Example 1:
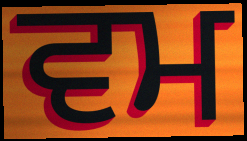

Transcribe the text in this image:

ਵਮ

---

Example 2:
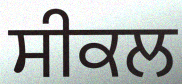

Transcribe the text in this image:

ਸੀਕਲ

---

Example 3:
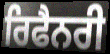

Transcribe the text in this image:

ਰਿਫੈਨਰੀ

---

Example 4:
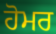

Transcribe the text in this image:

ਹੋਮਰ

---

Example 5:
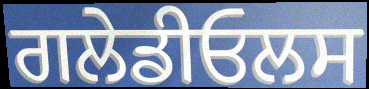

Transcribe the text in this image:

ਗਲੇਡੀਓਲਸ